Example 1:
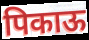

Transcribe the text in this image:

पिकाऊ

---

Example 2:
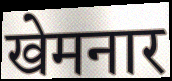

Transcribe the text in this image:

खेमनार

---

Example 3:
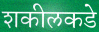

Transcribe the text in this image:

शकीलकडे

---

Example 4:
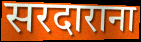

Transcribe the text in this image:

सरदाराना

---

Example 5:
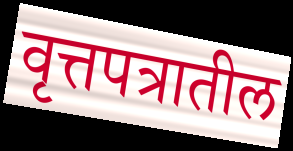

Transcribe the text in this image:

वृत्तपत्रातील